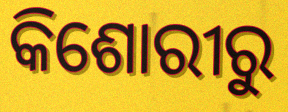
କିଶୋରୀରୁ